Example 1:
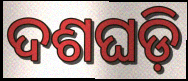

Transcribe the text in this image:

ଦଶଘଡ଼ି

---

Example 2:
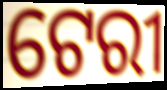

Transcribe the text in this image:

ଟେରୀ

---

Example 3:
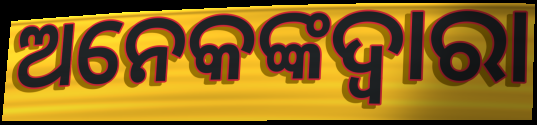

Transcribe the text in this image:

ଅନେକଙ୍କଦ୍ୱାରା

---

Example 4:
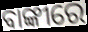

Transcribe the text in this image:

ବାଙ୍କୀରେ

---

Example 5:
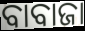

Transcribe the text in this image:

ବାବାଜା